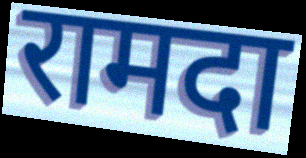
रामदा